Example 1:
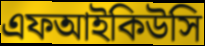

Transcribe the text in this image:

এফআইকিউসি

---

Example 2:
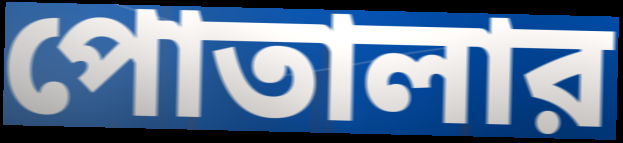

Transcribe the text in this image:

পোতালার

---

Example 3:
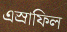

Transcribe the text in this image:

এস্রাফিল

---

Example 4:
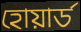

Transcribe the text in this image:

হোয়ার্ড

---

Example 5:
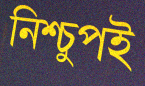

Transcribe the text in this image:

নিশ্চুপই